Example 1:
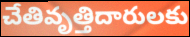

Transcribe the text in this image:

చేతివృత్తిదారులకు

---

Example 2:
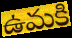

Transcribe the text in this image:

ఉమకి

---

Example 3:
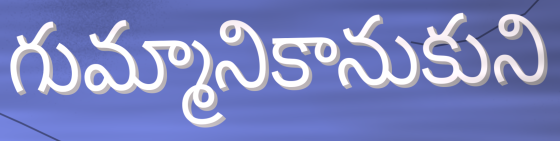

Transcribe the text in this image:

గుమ్మానికానుకుని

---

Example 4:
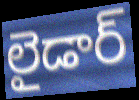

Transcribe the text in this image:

లైడార్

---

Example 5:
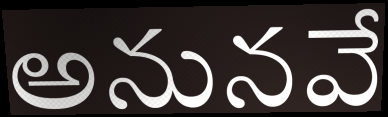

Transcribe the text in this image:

అనునవే